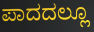
ಪಾದದಲ್ಲೂ